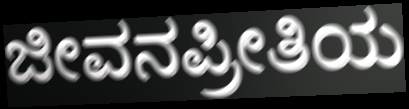
ಜೀವನಪ್ರೀತಿಯ